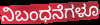
ನಿಬಂಧನೆಗಳೂ